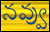
నవ్వు